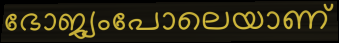
ഭോജ്യംപോലെയാണ്